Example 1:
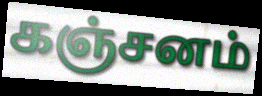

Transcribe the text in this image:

கஞ்சனம்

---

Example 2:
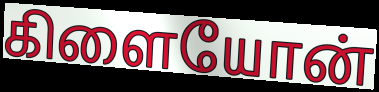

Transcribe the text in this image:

கிளையோன்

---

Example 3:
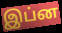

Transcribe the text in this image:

இப்ன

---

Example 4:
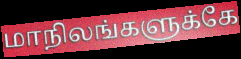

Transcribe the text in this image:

மாநிலங்களுக்கே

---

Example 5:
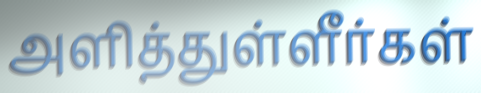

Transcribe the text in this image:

அளித்துள்ளீர்கள்